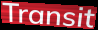
Transit